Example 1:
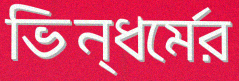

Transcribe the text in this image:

ভিন্‌ধর্মের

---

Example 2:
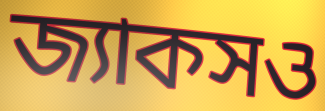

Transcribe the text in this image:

জ্যাকসও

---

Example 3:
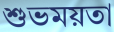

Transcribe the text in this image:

শুভময়তা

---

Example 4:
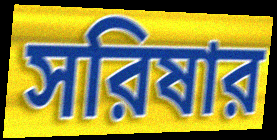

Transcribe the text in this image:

সরিষার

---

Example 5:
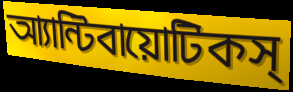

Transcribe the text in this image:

আ্যান্টিবায়োটিকস্